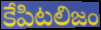
కేపిటలిజం